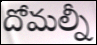
దోమల్నీ